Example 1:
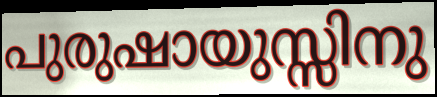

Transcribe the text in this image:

പുരുഷായുസ്സിനു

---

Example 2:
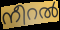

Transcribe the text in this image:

നീറൽ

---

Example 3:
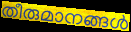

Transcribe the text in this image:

തീരുമാനങ്ങൾ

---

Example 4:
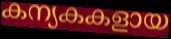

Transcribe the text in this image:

കന്യകകളായ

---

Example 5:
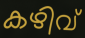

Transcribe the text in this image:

കഴിവ്